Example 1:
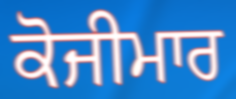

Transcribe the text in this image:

ਕੋਜੀਮਾਰ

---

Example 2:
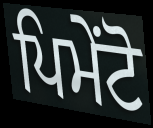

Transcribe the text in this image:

ਪਿਮੇਂਟੋ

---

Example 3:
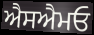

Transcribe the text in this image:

ਐਸਐਮਓ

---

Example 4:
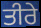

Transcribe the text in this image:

ਤੀਰੇ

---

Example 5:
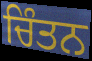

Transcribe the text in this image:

ਚਿੰਤਨ